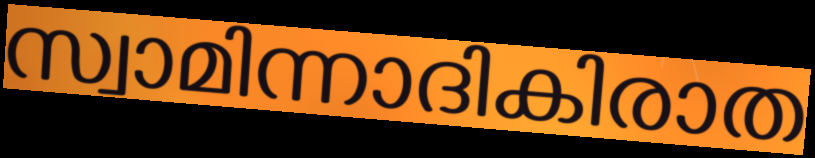
സ്വാമിന്നാദികിരാത